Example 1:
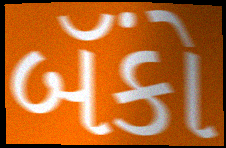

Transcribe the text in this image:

બૅંકો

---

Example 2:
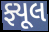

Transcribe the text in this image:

ફ્યૂલ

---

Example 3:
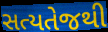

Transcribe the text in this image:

સત્યતેજથી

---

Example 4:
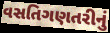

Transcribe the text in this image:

વસતિગણતરીનું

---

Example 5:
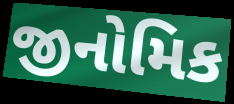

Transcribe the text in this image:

જીનોમિક